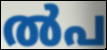
ൽപ